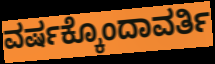
ವರ್ಷಕ್ಕೊಂದಾವರ್ತಿ